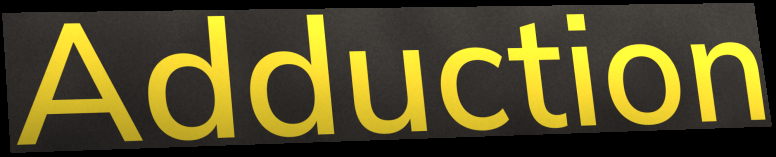
Adduction